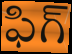
ఫిగ్